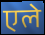
एले